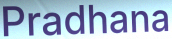
Pradhana